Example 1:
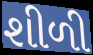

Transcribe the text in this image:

શીળી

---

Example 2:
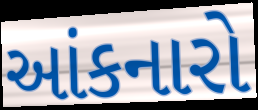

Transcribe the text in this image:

આંકનારો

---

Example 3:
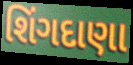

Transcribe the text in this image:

શિંગદાણા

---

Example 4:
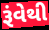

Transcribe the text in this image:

રૂંવેથી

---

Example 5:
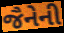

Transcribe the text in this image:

જૈનેની